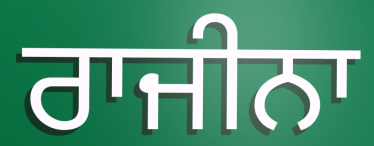
ਰਾਜੀਨਾ